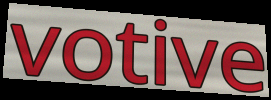
votive